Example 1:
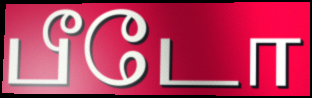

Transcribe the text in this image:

பீடோ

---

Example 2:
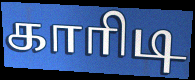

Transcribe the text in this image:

காரிடி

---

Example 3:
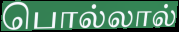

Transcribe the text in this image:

பொல்லால்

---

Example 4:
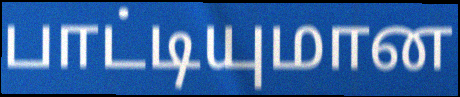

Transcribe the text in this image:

பாட்டியுமான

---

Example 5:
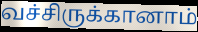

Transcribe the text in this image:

வச்சிருக்கானாம்